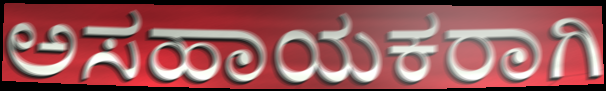
ಅಸಹಾಯಕರಾಗಿ